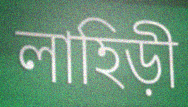
লাহিড়ী